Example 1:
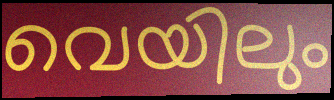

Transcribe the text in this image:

വെയിലും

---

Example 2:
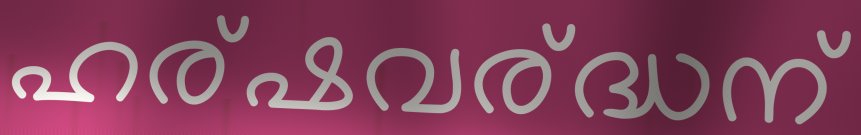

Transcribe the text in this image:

ഹര്ഷവര്ദ്ധന്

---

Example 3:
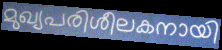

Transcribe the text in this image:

മുഖ്യപരിശീലകനായി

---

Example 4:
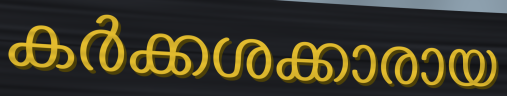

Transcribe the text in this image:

കർക്കശക്കാരായ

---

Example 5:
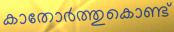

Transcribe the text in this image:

കാതോർത്തുകൊണ്ട്